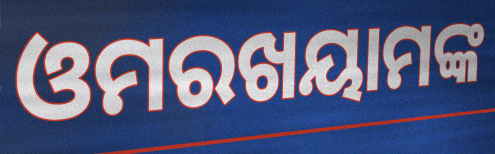
ଓମରଖୟାମଙ୍କ